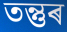
তন্তুৰ